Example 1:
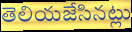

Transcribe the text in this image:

తెలియజేసినట్లు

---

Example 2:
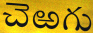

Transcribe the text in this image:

చెఱగు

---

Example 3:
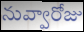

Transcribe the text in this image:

నువ్వారోజు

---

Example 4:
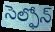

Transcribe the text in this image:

సెల్ఫోన్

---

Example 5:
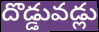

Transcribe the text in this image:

దొడ్డువడ్లు